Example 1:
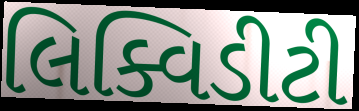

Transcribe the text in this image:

લિક્વિડીટી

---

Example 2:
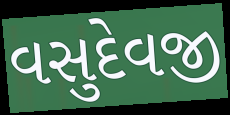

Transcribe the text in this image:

વસુદેવજી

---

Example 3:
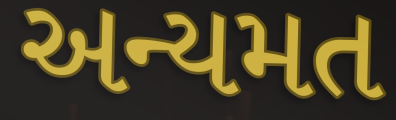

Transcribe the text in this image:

અન્યમત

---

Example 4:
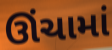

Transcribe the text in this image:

ઊંચામાં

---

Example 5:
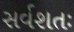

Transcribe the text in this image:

સર્વશતઃ